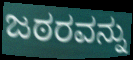
ಜಠರವನ್ನು